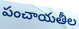
పంచాయతీల